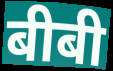
बीबी